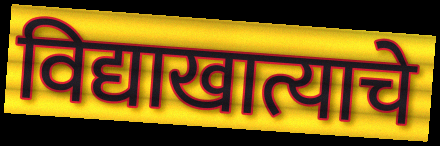
विद्याखात्याचे